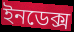
ইনডেক্স